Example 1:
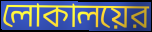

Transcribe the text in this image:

লোকালয়ের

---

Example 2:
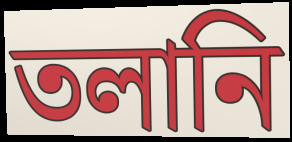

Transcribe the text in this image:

তলানি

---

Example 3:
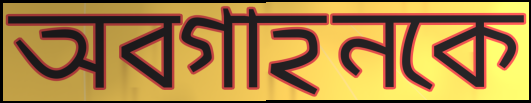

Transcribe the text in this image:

অবগাহনকে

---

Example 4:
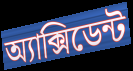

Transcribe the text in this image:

অ্যাক্সিডেন্ট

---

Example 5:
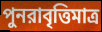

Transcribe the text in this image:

পুনরাবৃত্তিমাত্র